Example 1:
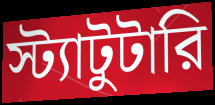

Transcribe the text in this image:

স্ট্যাটুটারি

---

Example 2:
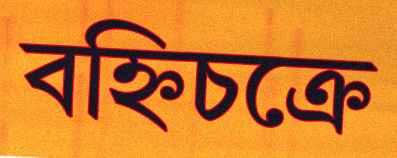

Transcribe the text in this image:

বহ্নিচক্রে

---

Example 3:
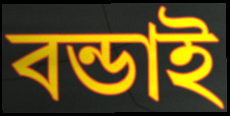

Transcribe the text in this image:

বন্ডাই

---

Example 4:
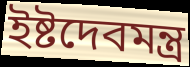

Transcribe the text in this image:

ইষ্টদেবমন্ত্র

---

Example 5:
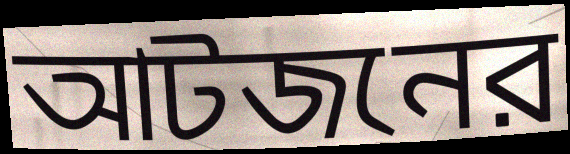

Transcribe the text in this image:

আটজনের